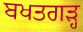
ਬਖਤਗੜ੍ਹ